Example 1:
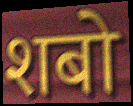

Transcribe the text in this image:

शबो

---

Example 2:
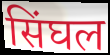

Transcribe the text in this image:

सिंघल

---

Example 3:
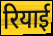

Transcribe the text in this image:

रियाई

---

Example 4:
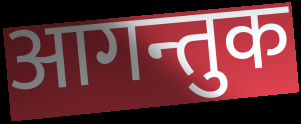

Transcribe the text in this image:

आगन्तुक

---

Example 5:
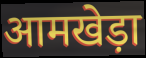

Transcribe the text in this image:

आमखेड़ा